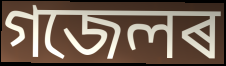
গজেলৰ